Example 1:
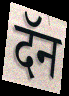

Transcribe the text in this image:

दॅन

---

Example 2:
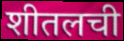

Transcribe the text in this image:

शीतलची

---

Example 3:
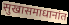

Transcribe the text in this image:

सुखासमाधानांत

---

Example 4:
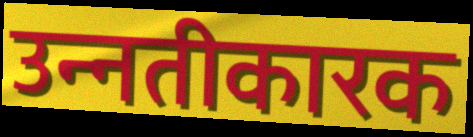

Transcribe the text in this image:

उन्नतीकारक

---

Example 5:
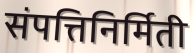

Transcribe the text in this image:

संपत्तिनिर्मिती